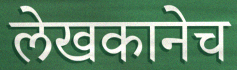
लेखकानेच